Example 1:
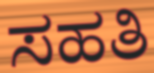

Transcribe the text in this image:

ಸಹತಿ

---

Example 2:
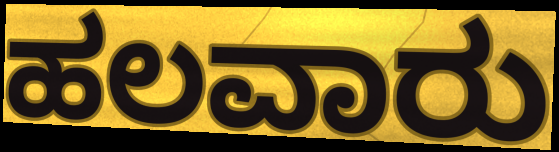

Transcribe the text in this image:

ಹಲವಾರು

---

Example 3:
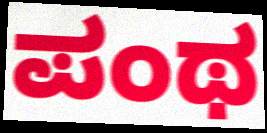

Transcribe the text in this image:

ಪಂಥ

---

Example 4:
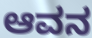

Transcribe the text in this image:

ಆವನ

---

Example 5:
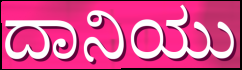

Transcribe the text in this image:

ದಾನಿಯು